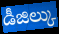
డీజిల్కు